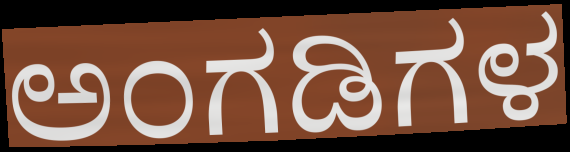
ಅಂಗಡಿಗಳ